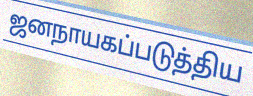
ஜனநாயகப்படுத்திய